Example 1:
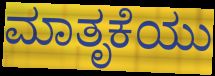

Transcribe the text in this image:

ಮಾತೃಕೆಯು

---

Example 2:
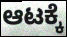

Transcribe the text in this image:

ಆಟಕ್ಕೆ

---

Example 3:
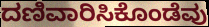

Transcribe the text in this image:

ದಣಿವಾರಿಸಿಕೊಂಡೆವು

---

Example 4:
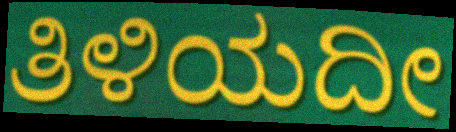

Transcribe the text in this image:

ತಿಳಿಯದೀ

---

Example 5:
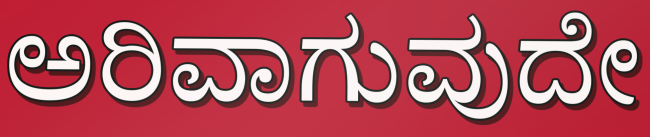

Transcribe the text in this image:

ಅರಿವಾಗುವುದೇ